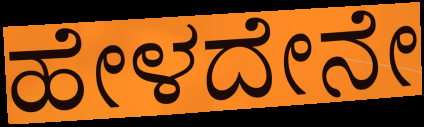
ಹೇಳದೇನೇ